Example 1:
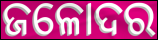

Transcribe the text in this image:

ଜଳୋଦର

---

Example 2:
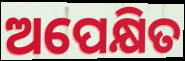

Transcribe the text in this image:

ଅପେକ୍ଷିତ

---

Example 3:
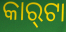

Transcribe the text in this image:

କାର୍‍ଟା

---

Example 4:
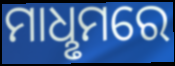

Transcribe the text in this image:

ମାଧୢମରେ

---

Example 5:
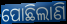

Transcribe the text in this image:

ପୋଛିଲାଣି